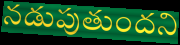
నడుపుతుందని